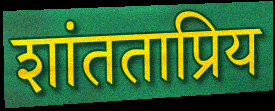
शांतताप्रिय